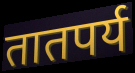
तातपर्य